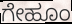
ಗೇಹೂಂ